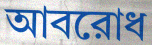
আবরোধ